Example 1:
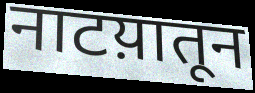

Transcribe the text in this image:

नाटय़ातून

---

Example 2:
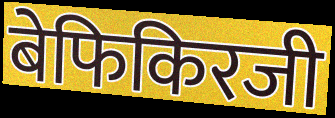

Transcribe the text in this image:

बेफिकिरजी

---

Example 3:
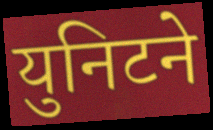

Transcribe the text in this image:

युनिटने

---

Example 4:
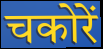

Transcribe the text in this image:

चकोरें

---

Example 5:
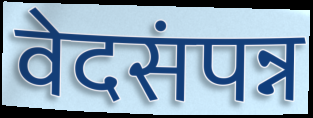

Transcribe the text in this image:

वेदसंपन्न